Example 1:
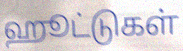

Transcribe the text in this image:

ஹூட்டுகள்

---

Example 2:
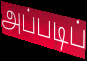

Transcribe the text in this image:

அப்படிப்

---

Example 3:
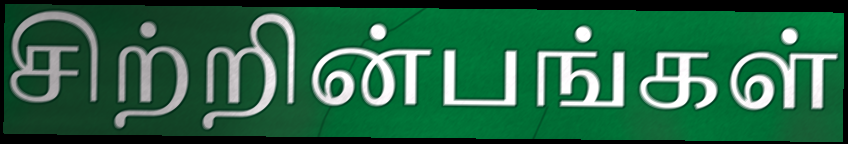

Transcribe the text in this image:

சிற்றின்பங்கள்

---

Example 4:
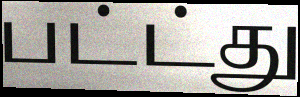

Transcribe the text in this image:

பட்ட்து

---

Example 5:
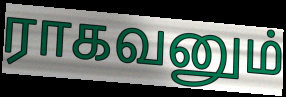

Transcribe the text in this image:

ராகவனும்